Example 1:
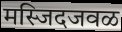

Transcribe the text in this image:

मस्जिदजवळ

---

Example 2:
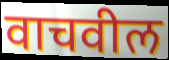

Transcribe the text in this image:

वाचवील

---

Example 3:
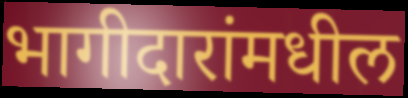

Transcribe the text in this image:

भागीदारांमधील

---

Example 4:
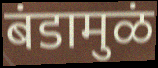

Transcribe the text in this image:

बंडामुळं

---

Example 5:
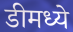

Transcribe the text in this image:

डीमध्ये